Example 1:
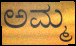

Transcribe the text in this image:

ಅಮ್ಮ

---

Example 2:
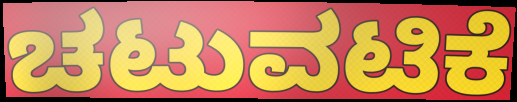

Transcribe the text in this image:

ಚಟುವಟಿಕೆ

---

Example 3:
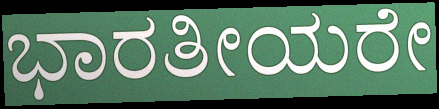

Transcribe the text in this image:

ಭಾರತೀಯರೇ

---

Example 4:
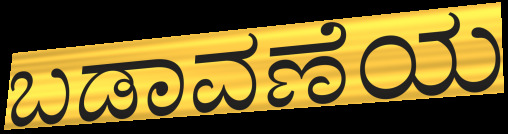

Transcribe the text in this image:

ಬಡಾವಣೆಯ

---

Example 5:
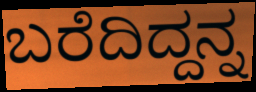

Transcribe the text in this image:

ಬರೆದಿದ್ದನ್ನ